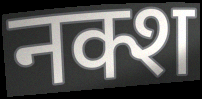
नक्श